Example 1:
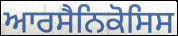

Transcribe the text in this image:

ਆਰਸੈਨਿਕੋਸਿਸ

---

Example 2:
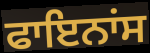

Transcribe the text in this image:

ਫਾਇਨਾਂਸ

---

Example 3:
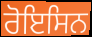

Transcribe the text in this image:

ਰੋਇਸਿਨ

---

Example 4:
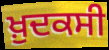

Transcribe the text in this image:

ਖ਼ੁਦਕਸੀ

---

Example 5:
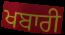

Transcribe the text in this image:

ਖਬਾਰੀ